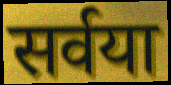
सर्वया